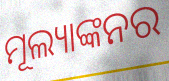
ମୂଲ୍ୟାଙ୍କନର